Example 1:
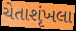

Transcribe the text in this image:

ચેતાશૃંખલા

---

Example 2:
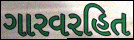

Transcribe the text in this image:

ગારવરહિત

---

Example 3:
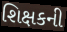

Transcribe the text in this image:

શિક્ષકની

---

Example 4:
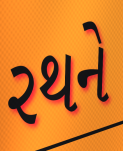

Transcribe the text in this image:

રથને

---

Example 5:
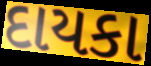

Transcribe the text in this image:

દાયકા